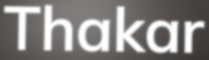
Thakar